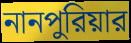
নানপুরিয়ার